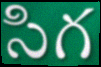
సిగ